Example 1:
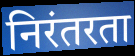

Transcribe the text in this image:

निरंतरता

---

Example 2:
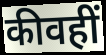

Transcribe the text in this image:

कीवहीं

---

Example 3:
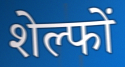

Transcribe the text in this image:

शेल्फों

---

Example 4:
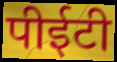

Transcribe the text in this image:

पीईटी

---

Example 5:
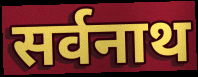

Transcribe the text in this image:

सर्वनाथ